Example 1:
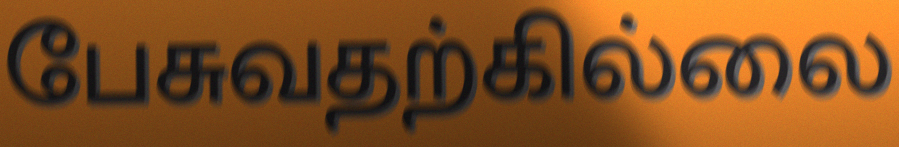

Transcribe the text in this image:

பேசுவதற்கில்லை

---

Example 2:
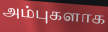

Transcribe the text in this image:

அம்புகளாக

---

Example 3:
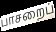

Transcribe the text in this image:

பாசறைப்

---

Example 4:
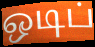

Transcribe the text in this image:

ஒடிப்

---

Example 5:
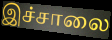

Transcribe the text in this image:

இச்சாலை